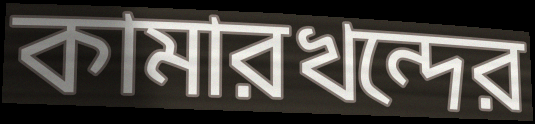
কামারখন্দের